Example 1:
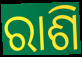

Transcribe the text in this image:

ରାଶି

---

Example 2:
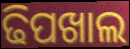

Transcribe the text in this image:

ଢିପଖାଲ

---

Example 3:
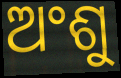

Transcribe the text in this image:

ଅଂଶୁ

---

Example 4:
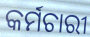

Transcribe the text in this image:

କର୍ମଚାରୀ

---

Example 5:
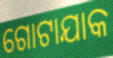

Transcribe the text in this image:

ଗୋଟାଯାକ